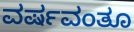
ವರ್ಷವಂತೂ